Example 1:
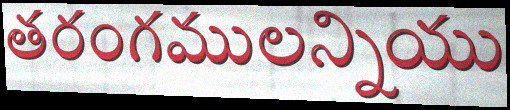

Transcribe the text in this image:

తరంగములన్నియు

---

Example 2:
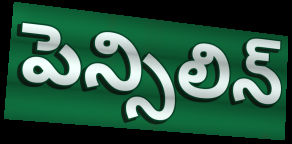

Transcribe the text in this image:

పెన్సిలిన్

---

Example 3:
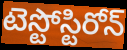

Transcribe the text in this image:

టెస్టోస్టిరోన్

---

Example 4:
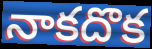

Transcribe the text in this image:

నాకదొక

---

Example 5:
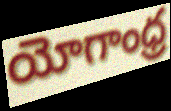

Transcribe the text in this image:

యోగాంధ్ర